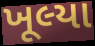
ખૂલ્યા